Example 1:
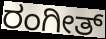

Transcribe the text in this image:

ರಂಗೀತ್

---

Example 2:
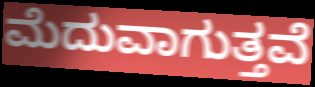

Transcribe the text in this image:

ಮೆದುವಾಗುತ್ತವೆ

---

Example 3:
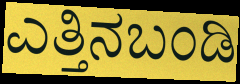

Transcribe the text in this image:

ಎತ್ತಿನಬಂಡಿ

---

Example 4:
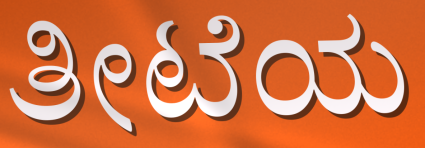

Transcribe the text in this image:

ತೀಟೆಯ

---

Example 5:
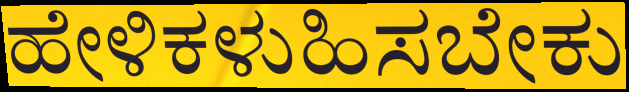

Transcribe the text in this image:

ಹೇಳಿಕಳುಹಿಸಬೇಕು